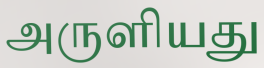
அருளியது